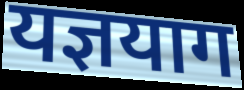
यज्ञयाग